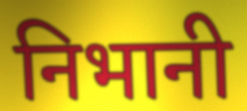
निभानी